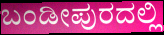
ಬಂಡೀಪುರದಲ್ಲಿ